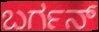
ಬರ್ಗನ್